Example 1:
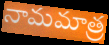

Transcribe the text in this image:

నామమాత్ర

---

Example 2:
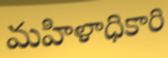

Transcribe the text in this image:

మహిళాధికారి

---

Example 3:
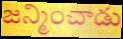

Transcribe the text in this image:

జన్మించాడు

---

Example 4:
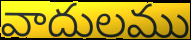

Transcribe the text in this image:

వాదులము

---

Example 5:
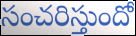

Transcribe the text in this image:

సంచరిస్తుందో